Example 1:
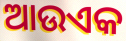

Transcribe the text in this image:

ଆଉଏକ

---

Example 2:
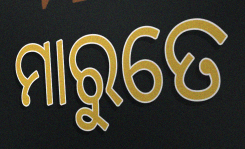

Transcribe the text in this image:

ମାରୁତେ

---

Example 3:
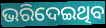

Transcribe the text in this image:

ଭରିଦେଇଥିବ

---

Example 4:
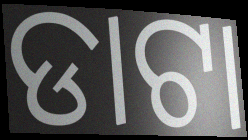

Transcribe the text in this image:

ଡାଟା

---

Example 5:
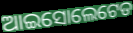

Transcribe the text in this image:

ଆଇସୋଲେଟେଡ